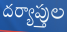
దర్యాప్తుల